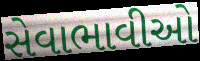
સેવાભાવીઓ